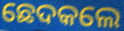
ଛେଦକଲେ